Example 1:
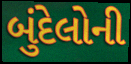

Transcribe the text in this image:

બુંદેલોની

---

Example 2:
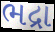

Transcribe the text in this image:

ભદ્રા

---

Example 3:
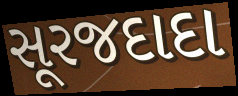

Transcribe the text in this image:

સૂરજદાદા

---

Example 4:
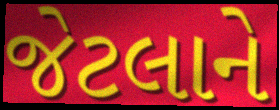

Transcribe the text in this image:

જેટલાને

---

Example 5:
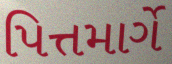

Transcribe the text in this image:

પિત્તમાર્ગે